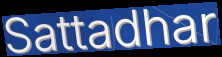
Sattadhar